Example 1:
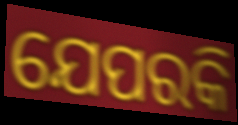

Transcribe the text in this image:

ଯେପରକି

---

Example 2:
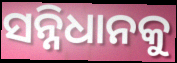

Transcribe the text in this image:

ସନ୍ନିଧାନକୁ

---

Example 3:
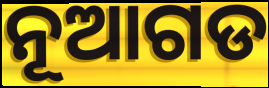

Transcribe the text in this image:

ନୂଆଗଡ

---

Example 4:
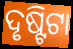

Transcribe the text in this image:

ଦୃଷ୍ଟିଟା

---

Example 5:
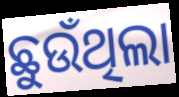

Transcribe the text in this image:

ଛୁଉଁଥିଲା